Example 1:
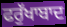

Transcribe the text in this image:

ਫਰੁੱਖਾਬਾਦ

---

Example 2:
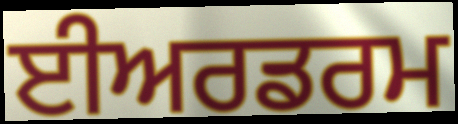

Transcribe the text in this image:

ਈਅਰਡਰਮ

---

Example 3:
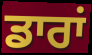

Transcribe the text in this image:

ਡਾਰਾਂ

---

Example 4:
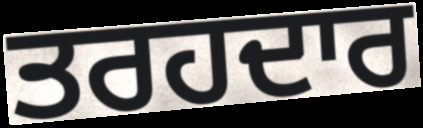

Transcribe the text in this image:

ਤਰਹਦਾਰ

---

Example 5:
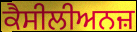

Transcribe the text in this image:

ਕੈਸੀਲੀਅਨਜ਼